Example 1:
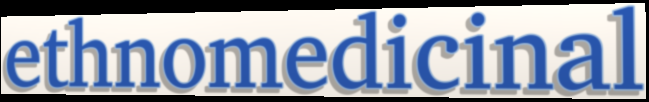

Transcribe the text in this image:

ethnomedicinal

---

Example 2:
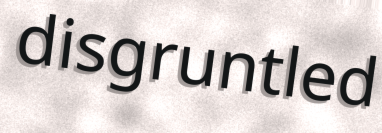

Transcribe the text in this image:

disgruntled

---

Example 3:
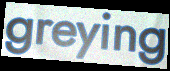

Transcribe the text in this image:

greying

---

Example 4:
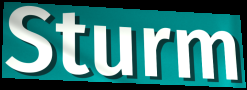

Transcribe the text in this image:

Sturm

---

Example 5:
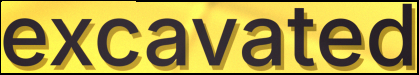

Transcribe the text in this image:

excavated